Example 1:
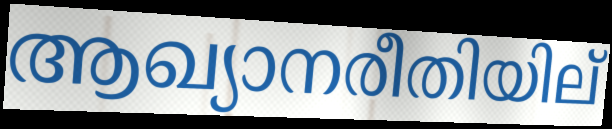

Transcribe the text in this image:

ആഖ്യാനരീതിയില്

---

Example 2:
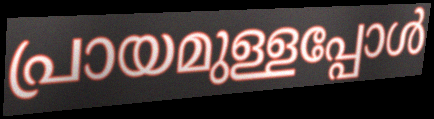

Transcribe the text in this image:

പ്രായമുള്ളപ്പോൾ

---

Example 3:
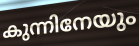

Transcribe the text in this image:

കുന്നിനേയും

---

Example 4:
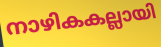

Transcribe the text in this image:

നാഴികകല്ലായി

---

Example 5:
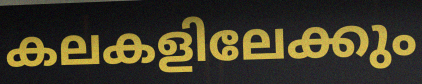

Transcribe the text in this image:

കലകളിലേക്കും